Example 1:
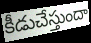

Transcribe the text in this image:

కీడుచేస్తుందా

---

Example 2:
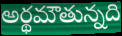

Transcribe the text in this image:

అర్థమౌతున్నది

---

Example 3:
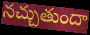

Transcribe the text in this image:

నచ్చుతుందా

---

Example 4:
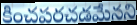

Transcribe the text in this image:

కించపరచడమేనని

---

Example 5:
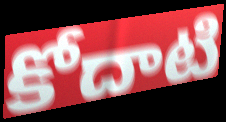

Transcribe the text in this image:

కోదాటి